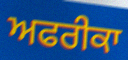
ਅਫਰੀਕਾ